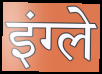
इंग्ले